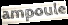
ampoule